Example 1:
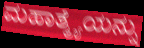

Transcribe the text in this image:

ಮಹಾತ್ಮ್ಯೆಯನ್ನು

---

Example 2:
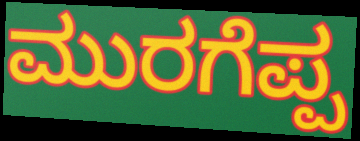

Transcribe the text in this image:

ಮುರಗೆಪ್ಪ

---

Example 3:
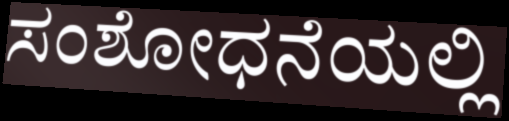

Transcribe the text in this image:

ಸಂಶೋಧನೆಯಲ್ಲಿ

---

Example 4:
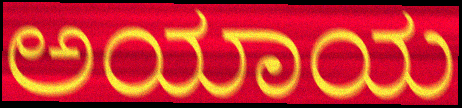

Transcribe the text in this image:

ಅಯಾಯ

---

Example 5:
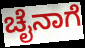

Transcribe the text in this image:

ಚೈನಾಗೆ